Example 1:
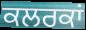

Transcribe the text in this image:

ਕਲਰਕਾਂ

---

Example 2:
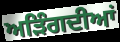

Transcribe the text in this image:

ਅੜਿੰਗਦੀਆਂ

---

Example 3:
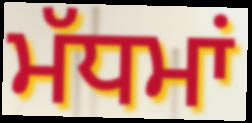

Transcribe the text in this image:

ਮੱਧਮਾਂ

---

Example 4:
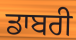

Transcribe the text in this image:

ਡਾਬਰੀ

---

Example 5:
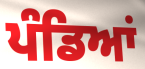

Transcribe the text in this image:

ਪੰਡਿਆਂ